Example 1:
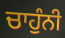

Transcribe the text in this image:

ਚਾਹੁੰਨੀ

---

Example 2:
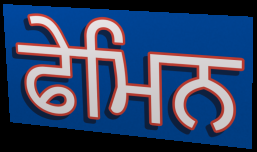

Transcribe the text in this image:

ਫੇਮਿਨ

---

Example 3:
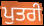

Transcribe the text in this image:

ਪੁਤਰੀ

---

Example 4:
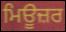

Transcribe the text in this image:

ਮਿਊਜ਼ਰ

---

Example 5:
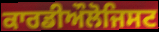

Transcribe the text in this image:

ਕਾਰਡੀਔਲੋਜਿਸਟ